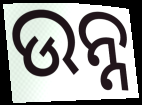
ଉନ୍ନ